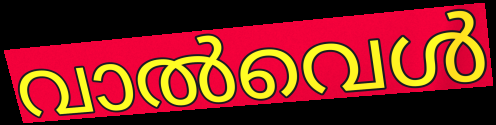
വാൽവെൾ